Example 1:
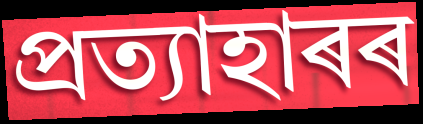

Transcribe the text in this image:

প্ৰত্যাহাৰৰ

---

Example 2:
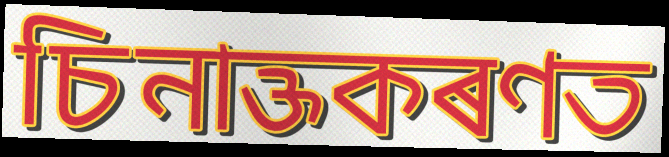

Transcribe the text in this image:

চিনাক্তকৰণত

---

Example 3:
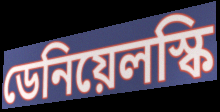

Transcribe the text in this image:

ডেনিয়েলস্কি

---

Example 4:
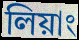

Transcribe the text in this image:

লিয়াং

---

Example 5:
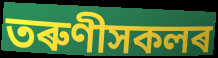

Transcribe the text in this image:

তৰুণীসকলৰ